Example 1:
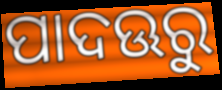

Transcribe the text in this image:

ପାଦଊରୁ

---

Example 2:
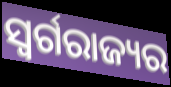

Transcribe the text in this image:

ସ୍ୱର୍ଗରାଜ୍ୟର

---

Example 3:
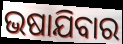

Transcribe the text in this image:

ଭଷାଯିବାର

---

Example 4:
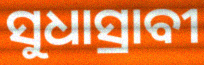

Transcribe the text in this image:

ସୁଧାସ୍ରାବୀ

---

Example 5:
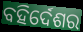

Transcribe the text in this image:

ବହିର୍ଦେଶର